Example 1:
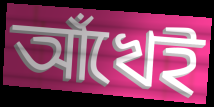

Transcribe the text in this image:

আঁখেই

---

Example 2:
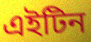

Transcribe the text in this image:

এইটিন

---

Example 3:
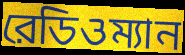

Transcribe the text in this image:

রেডিওম্যান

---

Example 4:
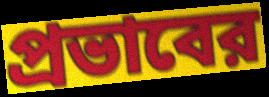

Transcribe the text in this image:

প্রভাবের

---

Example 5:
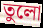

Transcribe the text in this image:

তুলো